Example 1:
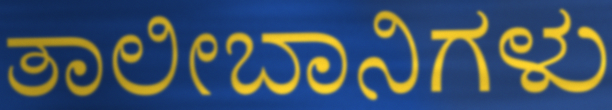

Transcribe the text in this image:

ತಾಲೀಬಾನಿಗಳು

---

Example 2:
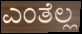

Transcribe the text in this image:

ಎಂತೆಲ್ಲ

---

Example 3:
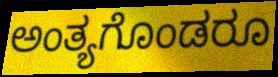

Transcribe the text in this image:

ಅಂತ್ಯಗೊಂಡರೂ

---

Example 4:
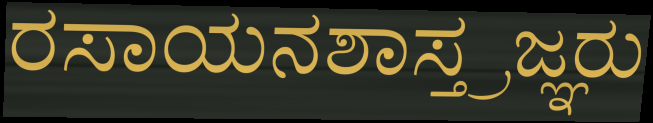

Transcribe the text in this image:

ರಸಾಯನಶಾಸ್ತ್ರಜ್ಞರು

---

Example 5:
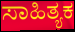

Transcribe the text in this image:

ಸಾಹಿತ್ಯಕ